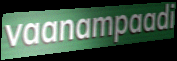
vaanampaadi